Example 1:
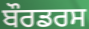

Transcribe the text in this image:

ਬੌਰਡਰਸ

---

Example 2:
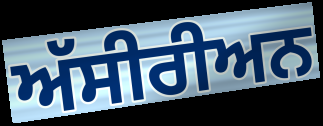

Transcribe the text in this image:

ਅੱਸੀਰੀਅਨ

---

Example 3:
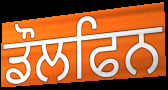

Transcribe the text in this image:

ਡੌਲਫਿਨ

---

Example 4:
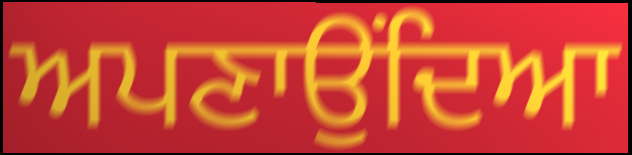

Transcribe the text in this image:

ਅਪਣਾਉਂਦਿਆ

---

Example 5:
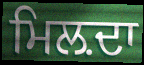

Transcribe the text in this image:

ਮਿਲ਼ਦਾ